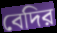
বেদির